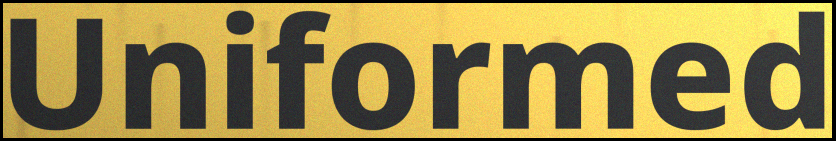
Uniformed